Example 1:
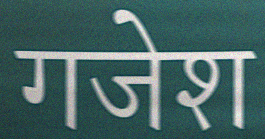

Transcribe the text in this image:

गजेश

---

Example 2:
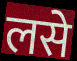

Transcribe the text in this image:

लसे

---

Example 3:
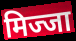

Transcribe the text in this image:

मिज्जा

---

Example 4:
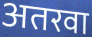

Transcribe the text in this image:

अतरवा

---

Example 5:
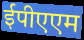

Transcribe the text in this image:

ईपीएएम